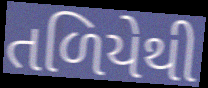
તળિયેથી